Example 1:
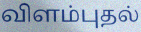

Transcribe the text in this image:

விளம்புதல்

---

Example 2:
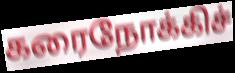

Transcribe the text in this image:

கரைநோக்கிச்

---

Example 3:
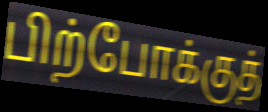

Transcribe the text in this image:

பிற்போக்குத்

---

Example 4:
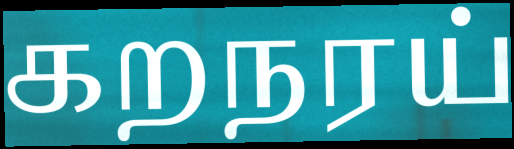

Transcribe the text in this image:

கறநரய்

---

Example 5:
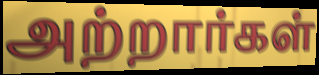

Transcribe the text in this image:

அற்றார்கள்